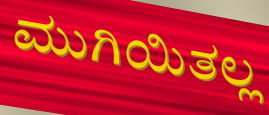
ಮುಗಿಯಿತಲ್ಲ